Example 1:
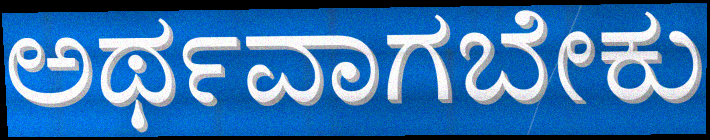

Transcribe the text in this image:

ಅರ್ಥವಾಗಬೇಕು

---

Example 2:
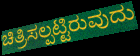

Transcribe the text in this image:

ಚಿತ್ರಿಸಲ್ಪಟ್ಟಿರುವುದು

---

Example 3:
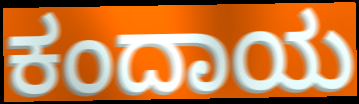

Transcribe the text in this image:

ಕಂದಾಯ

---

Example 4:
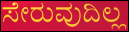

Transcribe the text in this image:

ಸೇರುವುದಿಲ್ಲ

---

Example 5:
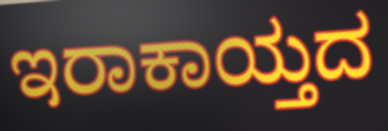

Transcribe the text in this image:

ಇರಾಕಾಯ್ತದ